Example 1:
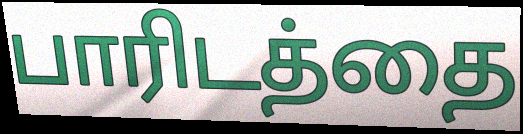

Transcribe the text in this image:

பாரிடத்தை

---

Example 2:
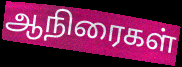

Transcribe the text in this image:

ஆநிரைகள்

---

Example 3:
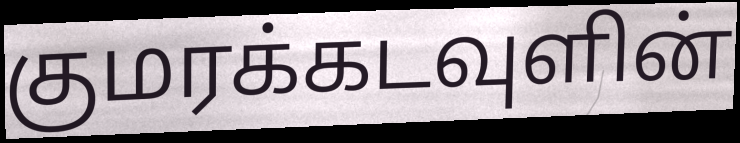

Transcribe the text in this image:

குமரக்கடவுளின்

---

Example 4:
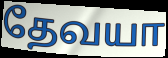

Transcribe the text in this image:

தேவயா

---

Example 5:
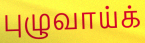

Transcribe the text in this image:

புழுவாய்க்